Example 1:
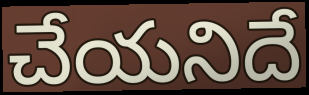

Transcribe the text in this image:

చేయనిదే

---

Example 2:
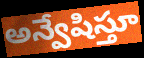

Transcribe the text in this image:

అన్వేషిస్తూ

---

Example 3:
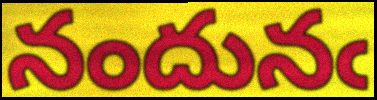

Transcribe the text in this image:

నందునఁ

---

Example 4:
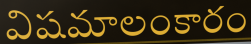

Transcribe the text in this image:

విషమాలంకారం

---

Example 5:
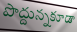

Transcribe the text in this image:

పొద్దున్నకూడా